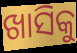
ଖାସିକୁ